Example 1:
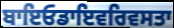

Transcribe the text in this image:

ਬਾਇਓਡਾਇਵਰਿਵਸਤਾ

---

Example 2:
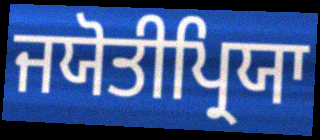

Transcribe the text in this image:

ਜਯੋਤੀਪ੍ਰਿਯਾ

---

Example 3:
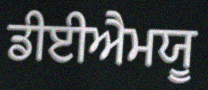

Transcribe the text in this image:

ਡੀਈਐਮਯੂ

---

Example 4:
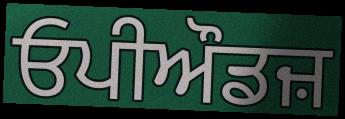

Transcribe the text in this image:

ਓਪੀਔਡਜ਼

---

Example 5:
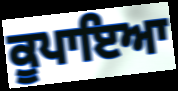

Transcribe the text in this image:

ਕੂਪਾਇਆ